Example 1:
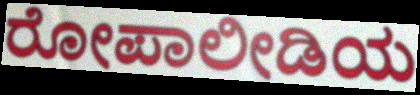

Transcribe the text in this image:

ರೋಪಾಲೀಡಿಯ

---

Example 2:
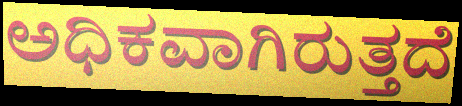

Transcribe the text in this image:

ಅಧಿಕವಾಗಿರುತ್ತದೆ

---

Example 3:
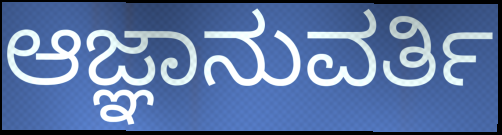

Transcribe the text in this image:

ಆಜ್ಞಾನುವರ್ತಿ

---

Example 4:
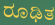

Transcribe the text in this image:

ರೂಢಿತ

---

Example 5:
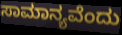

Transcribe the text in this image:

ಸಾಮಾನ್ಯವೆಂದು